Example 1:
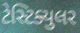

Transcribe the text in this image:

ટેસ્ટિક્યુલર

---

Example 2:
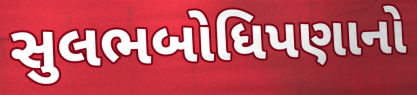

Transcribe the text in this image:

સુલભબોધિપણાનો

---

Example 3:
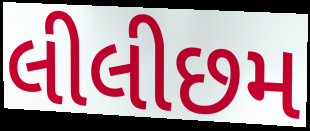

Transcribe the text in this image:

લીલીછમ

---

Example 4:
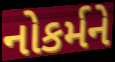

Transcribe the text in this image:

નોકર્મને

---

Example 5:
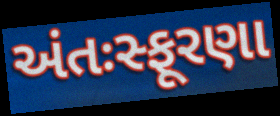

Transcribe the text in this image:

અંતઃસ્ફૂરણા